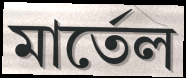
মার্তেল